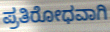
ಪ್ರತಿರೋಧವಾಗಿ